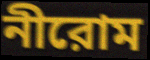
নীরোম